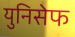
युनिसेफ